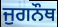
ਜੁਗਨੌਥ